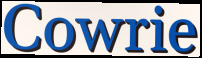
Cowrie